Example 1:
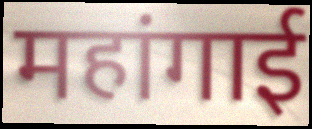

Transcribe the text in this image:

महांगाई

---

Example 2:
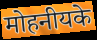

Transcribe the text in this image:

मोहनीयके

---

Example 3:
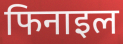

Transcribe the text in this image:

फिनाइल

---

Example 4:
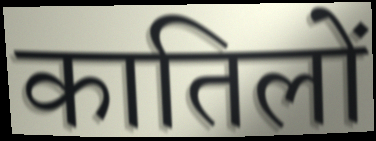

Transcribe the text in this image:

कातिलों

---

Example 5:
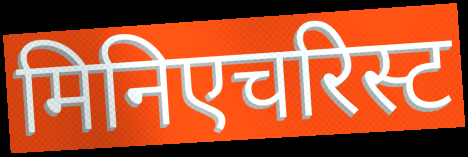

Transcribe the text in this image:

मिनिएचरिस्ट